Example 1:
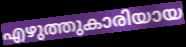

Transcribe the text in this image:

എഴുത്തുകാരിയായ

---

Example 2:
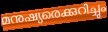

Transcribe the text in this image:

മനുഷ്യരെക്കുറിച്ചും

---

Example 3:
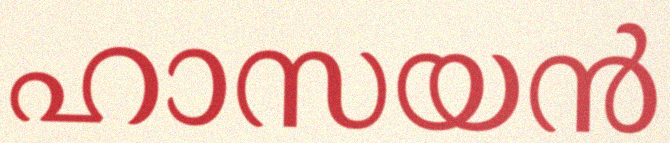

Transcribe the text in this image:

ഹാസയൻ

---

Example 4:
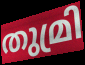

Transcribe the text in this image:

തുമ്രി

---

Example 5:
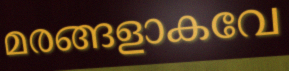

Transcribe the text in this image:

മരങ്ങളാകവേ